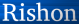
Rishon